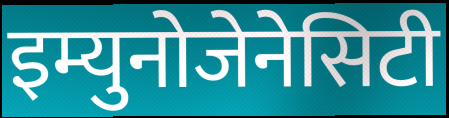
इम्युनोजेनेसिटी